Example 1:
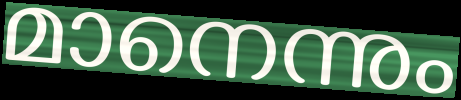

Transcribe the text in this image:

മാനെന്നും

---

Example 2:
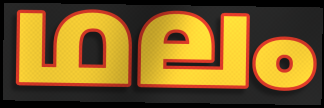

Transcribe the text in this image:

ഥലം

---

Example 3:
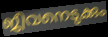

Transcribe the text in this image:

ജീവനെടുക്കും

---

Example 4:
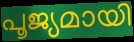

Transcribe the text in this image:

പൂജ്യമായി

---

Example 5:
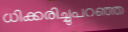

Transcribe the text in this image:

ധിക്കരിച്ചുപറഞ്ഞ